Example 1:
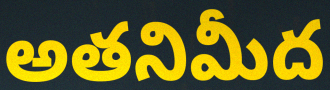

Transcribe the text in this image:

అతనిమీద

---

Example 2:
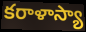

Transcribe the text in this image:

కరాళాస్యా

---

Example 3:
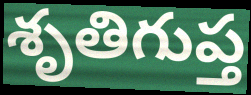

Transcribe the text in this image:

శృతిగుప్త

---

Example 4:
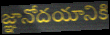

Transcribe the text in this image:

జ్ఞానోదయానికి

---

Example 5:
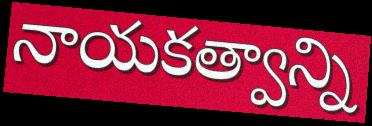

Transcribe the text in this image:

నాయకత్వాన్ని